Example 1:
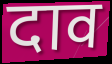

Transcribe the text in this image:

दाव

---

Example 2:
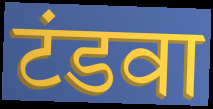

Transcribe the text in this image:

टंडवा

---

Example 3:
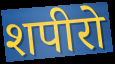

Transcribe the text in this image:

शपीरो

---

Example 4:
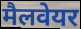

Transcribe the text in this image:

मैलवेयर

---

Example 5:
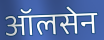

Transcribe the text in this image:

ऑलसेन